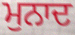
ਮੁਨਾਦ